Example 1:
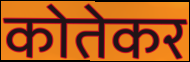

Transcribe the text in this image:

कोतेकर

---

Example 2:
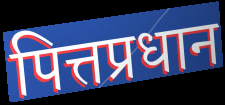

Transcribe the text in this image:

पित्तप्रधान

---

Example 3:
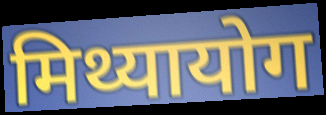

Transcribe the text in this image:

मिथ्यायोग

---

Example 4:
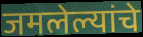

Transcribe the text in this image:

जमलेल्यांचे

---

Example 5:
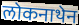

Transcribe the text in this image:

लोकनाथेन